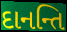
દાનન્તિ